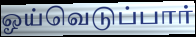
ஓய்வெடுப்பார்